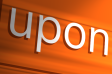
upon